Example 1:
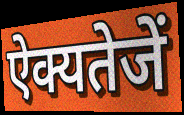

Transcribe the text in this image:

ऐक्यतेजें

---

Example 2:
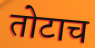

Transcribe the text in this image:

तोटाच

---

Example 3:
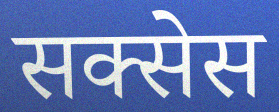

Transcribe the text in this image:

सक्सेस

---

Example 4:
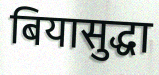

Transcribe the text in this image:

बियासुद्धा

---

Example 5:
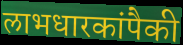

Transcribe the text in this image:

लाभधारकांपैकी